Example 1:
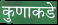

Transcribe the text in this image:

कुणाकडे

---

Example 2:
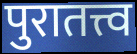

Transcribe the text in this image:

पुरातत्त्व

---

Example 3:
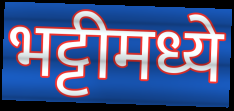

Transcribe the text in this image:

भट्टीमध्ये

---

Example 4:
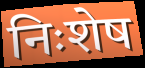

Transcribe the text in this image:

निःशेष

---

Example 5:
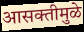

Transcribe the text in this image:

आसक्तीमुळे